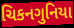
ચિકનગુનિયા